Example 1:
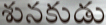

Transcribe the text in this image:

శునకుడు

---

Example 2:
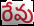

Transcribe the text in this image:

రేవు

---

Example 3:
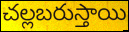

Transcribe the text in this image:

చల్లబరుస్తాయి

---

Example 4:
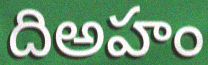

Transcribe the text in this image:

దిఅహం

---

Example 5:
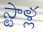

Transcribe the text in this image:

స్టాళ్ల